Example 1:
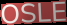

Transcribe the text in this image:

OSLE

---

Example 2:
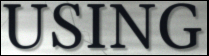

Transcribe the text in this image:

USING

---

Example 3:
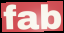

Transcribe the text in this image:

fab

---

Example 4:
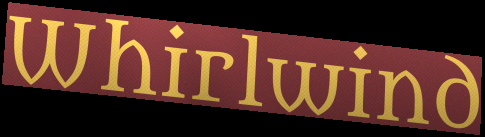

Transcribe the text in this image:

Whirlwind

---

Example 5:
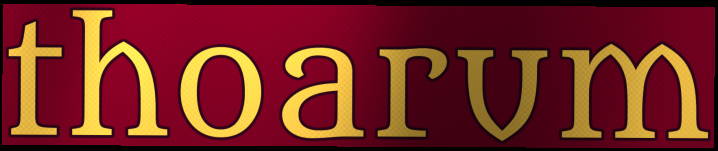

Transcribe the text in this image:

thoarum